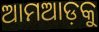
ଆମଆଡ଼କୁ